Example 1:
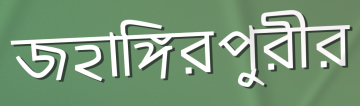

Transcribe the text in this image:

জহাঙ্গিরপুরীর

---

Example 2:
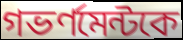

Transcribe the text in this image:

গভর্ণমেন্টকে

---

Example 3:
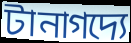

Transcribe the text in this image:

টানাগদ্যে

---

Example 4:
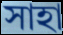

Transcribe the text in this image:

সাহা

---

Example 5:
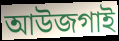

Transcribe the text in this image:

আউজগাই